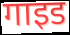
गाइड